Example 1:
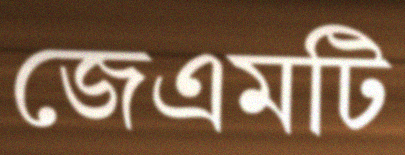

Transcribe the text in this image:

জেএমটি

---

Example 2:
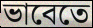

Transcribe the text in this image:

ভাবেতে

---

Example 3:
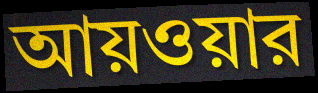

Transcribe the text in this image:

আয়ওয়ার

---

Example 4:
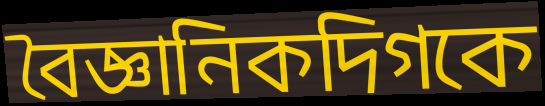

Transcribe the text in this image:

বৈজ্ঞানিকদিগকে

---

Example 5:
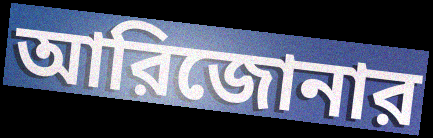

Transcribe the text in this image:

আরিজোনার